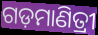
ଗଡ଼ମାଣିତ୍ରୀ